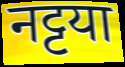
नट्टया